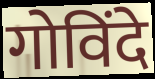
गोविंदे